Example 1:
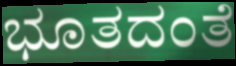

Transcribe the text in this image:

ಭೂತದಂತೆ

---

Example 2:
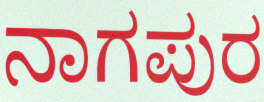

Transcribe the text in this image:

ನಾಗಪುರ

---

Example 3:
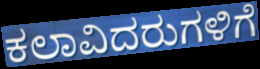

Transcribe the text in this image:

ಕಲಾವಿದರುಗಳಿಗೆ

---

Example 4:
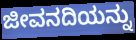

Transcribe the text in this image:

ಜೀವನದಿಯನ್ನು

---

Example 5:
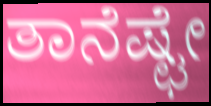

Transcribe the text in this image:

ತಾನೆಷ್ಟೇ